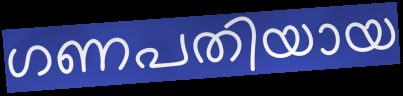
ഗണപതിയായ